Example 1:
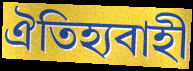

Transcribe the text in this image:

ঐতিহ্যবাহী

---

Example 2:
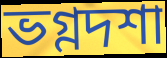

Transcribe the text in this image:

ভগ্নদশা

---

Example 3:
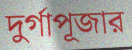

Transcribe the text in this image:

দুর্গাপূজার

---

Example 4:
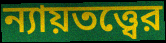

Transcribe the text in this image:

ন্যায়তত্ত্বের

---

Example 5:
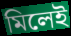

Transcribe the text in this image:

মিলেই